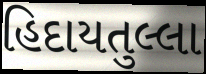
હિદાયતુલ્લા